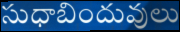
సుధాబిందువులు